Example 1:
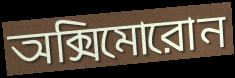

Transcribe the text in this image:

অক্সিমোরোন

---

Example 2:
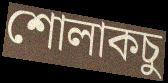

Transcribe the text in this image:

শোলাকচু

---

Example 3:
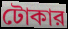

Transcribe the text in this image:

টোকার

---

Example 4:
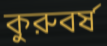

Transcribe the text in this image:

কুরুবর্ষ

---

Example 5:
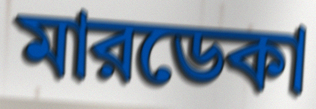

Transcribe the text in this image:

মারডেকা